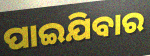
ପାଇଯିବାର